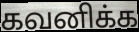
கவனிக்க